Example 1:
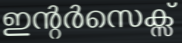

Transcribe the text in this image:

ഇന്റർസെക്സ്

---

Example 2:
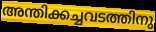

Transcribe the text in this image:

അന്തിക്കച്ചവടത്തിനു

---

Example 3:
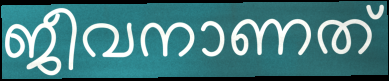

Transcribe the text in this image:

ജീവനാണത്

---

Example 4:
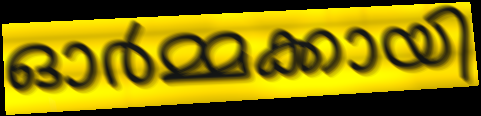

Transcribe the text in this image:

ഓർമ്മക്കായി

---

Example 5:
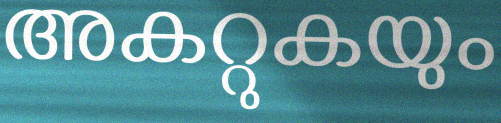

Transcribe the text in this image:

അകറ്റുകയും